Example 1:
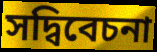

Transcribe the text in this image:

সদ্বিবেচনা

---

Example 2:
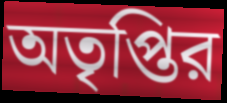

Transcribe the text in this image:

অতৃপ্তির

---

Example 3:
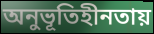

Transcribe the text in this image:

অনুভূতিহীনতায়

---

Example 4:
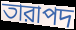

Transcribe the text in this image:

তারাপদ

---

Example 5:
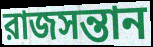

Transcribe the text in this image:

রাজসন্তান